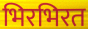
भिरभिरत